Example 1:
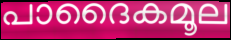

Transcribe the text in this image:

പാദൈകമൂല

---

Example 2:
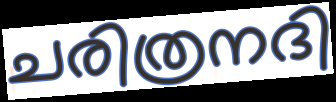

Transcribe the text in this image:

ചരിത്രനദി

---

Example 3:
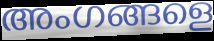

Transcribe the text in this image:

അംഗങ്ങളെ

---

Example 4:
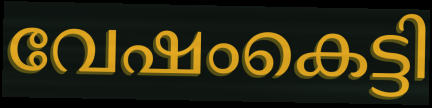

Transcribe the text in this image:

വേഷംകെട്ടി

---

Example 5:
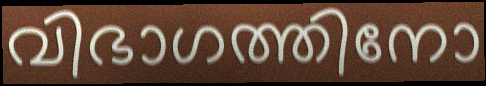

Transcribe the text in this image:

വിഭാഗത്തിനോ